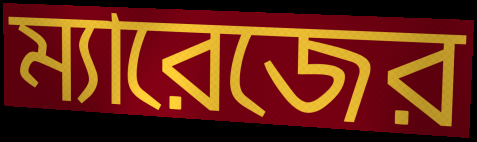
ম্যারেজের